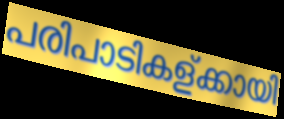
പരിപാടികള്ക്കായി